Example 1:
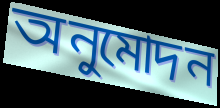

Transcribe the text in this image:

অনুমোদন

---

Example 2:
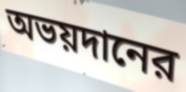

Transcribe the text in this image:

অভয়দানের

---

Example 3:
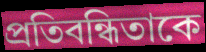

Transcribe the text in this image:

প্রতিবন্ধিতাকে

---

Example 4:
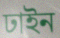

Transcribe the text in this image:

ঢাইন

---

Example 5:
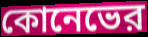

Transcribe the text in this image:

কোনেভের